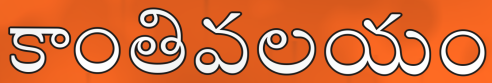
కాంతివలయం